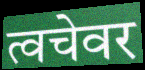
त्वचेवर